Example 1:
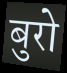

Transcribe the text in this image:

बुरो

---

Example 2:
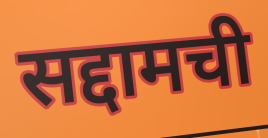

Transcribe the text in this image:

सद्दामची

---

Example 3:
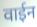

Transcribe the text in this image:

वाईन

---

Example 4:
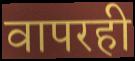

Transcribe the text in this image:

वापरही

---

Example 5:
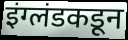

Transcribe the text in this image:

इंग्लंडकडून